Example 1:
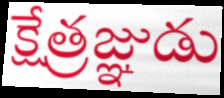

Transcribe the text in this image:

క్షేత్రజ్ఞుడు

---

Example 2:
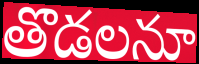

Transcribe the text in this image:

తొడలనూ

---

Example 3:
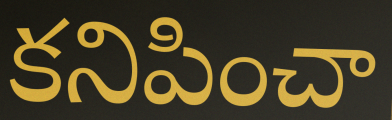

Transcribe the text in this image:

కనిపించా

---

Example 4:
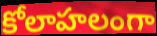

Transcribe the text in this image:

కోలాహలంగా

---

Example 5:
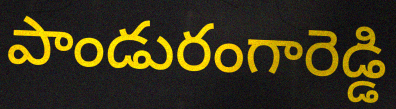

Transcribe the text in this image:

పాండురంగారెడ్డి